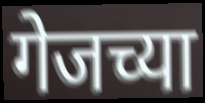
गेजच्या